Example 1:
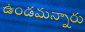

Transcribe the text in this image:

ఉండమన్నారు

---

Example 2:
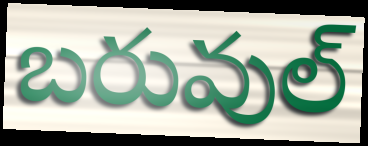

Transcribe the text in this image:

బరువుల్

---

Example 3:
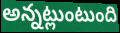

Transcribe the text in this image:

అన్నట్లుంటుంది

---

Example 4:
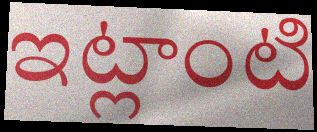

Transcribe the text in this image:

ఇట్లాంటి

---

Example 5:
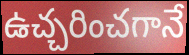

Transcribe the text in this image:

ఉచ్చరించగానే